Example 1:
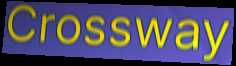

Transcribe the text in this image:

Crossway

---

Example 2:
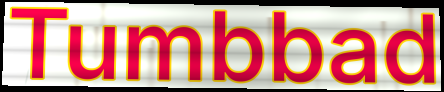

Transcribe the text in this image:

Tumbbad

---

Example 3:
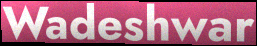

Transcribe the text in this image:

Wadeshwar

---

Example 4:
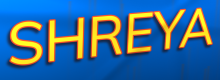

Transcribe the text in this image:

SHREYA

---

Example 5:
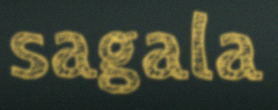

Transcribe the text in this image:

sagala